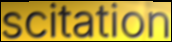
scitation